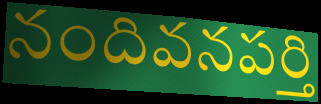
నందివనపర్తి